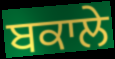
ਬਕਾਲੇ